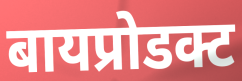
बायप्रोडक्ट